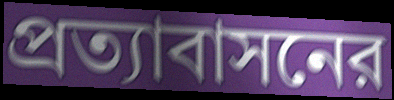
প্রত্যাবাসনের